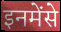
इनमेंसे